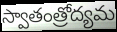
స్వాతంత్రోద్యమ